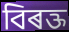
বিৰক্ত